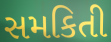
સમકિતી